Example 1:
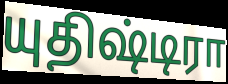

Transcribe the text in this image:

யுதிஷ்டிரா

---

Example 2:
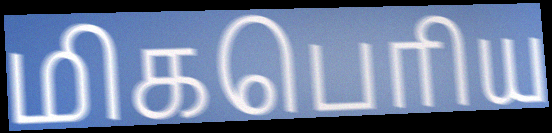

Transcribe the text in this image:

மிகபெரிய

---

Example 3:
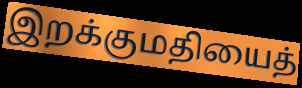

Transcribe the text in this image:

இறக்குமதியைத்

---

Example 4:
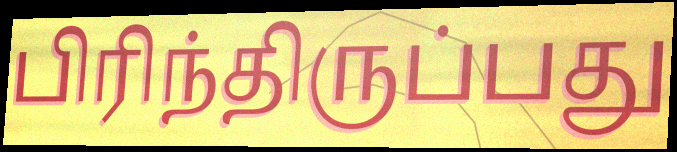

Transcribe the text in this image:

பிரிந்திருப்பது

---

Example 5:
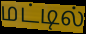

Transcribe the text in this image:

மட்டில்